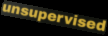
unsupervised